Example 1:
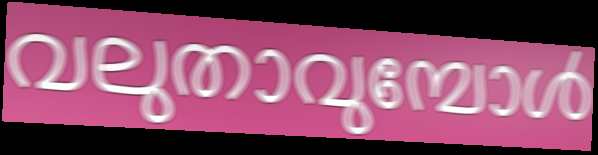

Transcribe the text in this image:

വലുതാവുമ്പോൾ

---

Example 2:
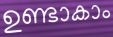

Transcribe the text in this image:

ഉണ്ടാകാം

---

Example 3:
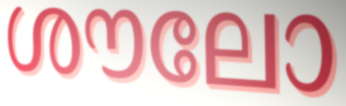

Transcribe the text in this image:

ശൗലോ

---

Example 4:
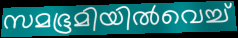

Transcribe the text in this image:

സമഭൂമിയിൽവെച്ച്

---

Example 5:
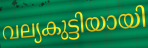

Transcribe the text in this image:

വല്യകുട്ടിയായി